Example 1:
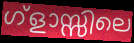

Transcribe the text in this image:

ഗ്ളാസ്സിലെ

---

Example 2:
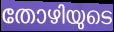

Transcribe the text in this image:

തോഴിയുടെ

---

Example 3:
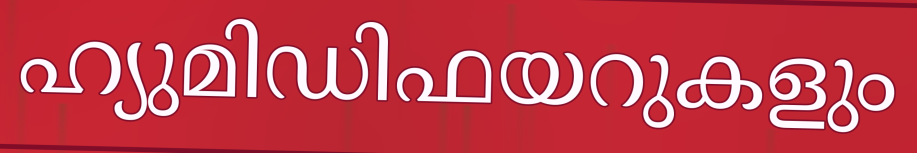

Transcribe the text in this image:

ഹ്യുമിഡിഫയറുകളും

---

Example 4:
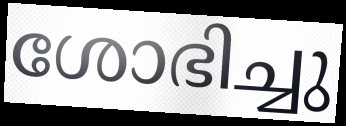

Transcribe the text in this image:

ശോഭിച്ചു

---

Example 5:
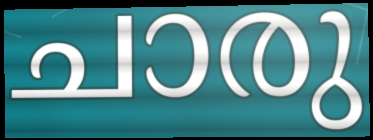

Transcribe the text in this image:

ചാരു